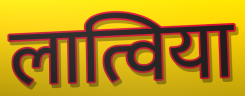
लात्विया